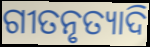
ଗୀତନୃତ୍ୟାଦି